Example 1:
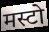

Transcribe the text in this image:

मस्टो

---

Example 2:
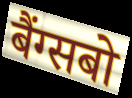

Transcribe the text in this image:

बैंग्सबो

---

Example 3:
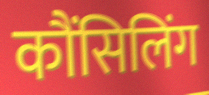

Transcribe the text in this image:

कौंसिलिंग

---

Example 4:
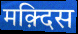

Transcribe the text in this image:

मक़्दिस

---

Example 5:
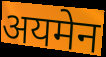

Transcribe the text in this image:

अयमेन